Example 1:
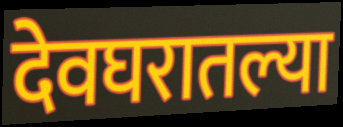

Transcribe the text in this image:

देवघरातल्या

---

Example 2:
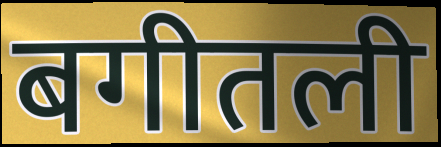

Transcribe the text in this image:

बगीतली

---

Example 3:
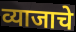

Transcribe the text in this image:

व्याजाचे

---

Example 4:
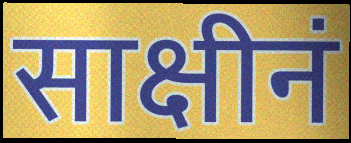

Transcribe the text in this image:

साक्षीनं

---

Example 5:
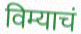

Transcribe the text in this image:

विम्याचं